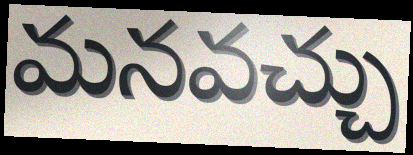
మనవచ్చు